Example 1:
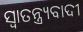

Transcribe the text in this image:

ସ୍ୱାତନ୍ତ୍ର୍ୟବାଦୀ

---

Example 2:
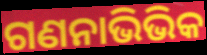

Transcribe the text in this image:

ଗଣନାଭିଭିକ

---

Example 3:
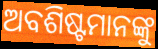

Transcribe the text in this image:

ଅବଶିଷ୍ଟମାନଙ୍କୁ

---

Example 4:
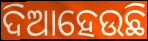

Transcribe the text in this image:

ଦିଆହେଉଛି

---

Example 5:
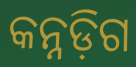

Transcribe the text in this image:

କନ୍ନଡ଼ିଗ